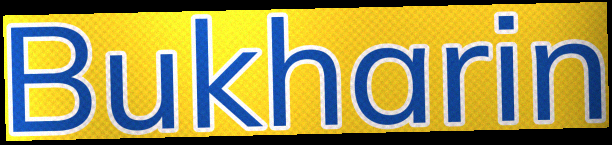
Bukharin